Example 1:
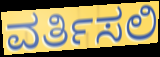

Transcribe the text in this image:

ವರ್ತಿಸಲಿ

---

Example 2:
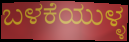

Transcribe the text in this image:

ಬಳಕೆಯುಳ್ಳ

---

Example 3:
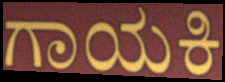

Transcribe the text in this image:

ಗಾಯಕಿ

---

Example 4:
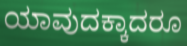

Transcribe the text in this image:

ಯಾವುದಕ್ಕಾದರೂ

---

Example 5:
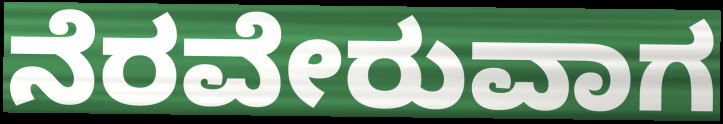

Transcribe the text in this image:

ನೆರವೇರುವಾಗ